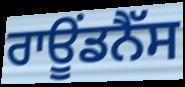
ਰਾਊਂਡਨੈੱਸ